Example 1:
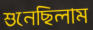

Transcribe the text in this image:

শুনেছিলাম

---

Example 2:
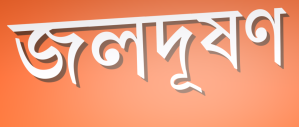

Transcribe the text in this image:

জলদূষণ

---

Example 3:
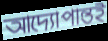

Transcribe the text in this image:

আদ্যোপান্তই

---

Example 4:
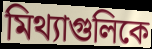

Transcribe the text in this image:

মিথ্যাগুলিকে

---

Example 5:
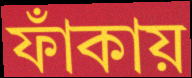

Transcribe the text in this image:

ফাঁকায়